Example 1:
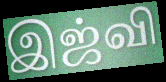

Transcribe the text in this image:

இஜ்வி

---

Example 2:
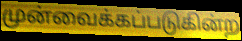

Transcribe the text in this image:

முன்வைக்கப்படுகின்ற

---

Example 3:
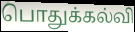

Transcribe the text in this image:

பொதுக்கல்வி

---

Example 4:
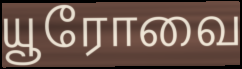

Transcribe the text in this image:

யூரோவை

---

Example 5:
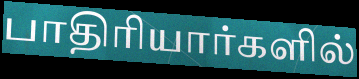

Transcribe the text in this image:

பாதிரியார்களில்